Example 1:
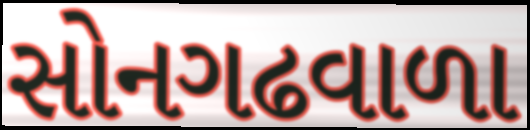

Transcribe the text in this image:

સોનગઢવાળા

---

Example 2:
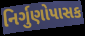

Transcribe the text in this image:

નિર્ગુણોપાસક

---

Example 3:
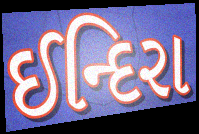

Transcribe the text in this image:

ઈન્દિરા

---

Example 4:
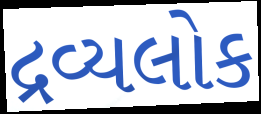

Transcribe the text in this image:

દ્રવ્યલોક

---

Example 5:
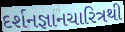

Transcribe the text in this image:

દર્શનજ્ઞાનચારિત્રથી